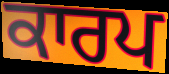
ਕਾਰਪ